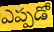
ఎప్పడో